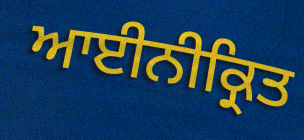
ਆਈਨੀਕ੍ਰਿਤ